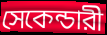
সেকেন্ডারী